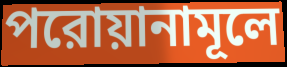
পরোয়ানামূলে